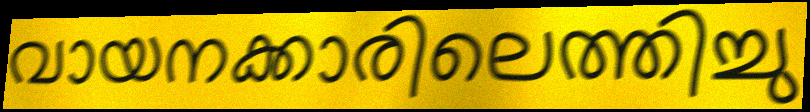
വായനക്കാരിലെത്തിച്ചു